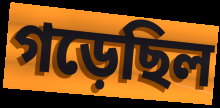
গড়েছিল